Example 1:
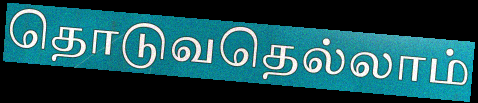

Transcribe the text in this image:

தொடுவதெல்லாம்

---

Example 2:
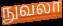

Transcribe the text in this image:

நுவலா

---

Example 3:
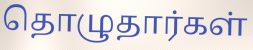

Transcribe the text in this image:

தொழுதார்கள்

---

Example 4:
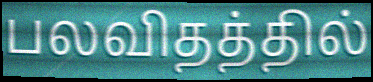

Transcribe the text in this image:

பலவிதத்தில்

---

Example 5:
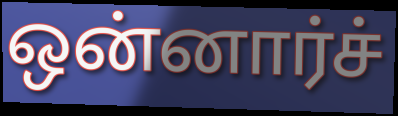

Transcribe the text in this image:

ஒன்னார்ச்